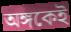
অঙ্গকেই